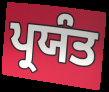
ਪ੍ਰਯੰਤ